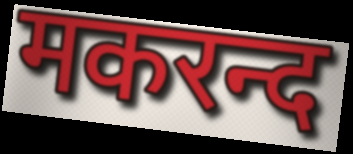
मकरन्द